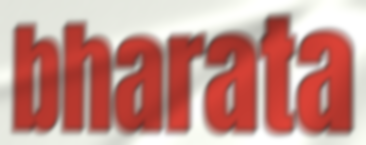
bharata